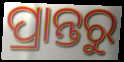
ପ୍ରାନ୍ତରୁ